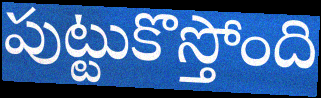
పుట్టుకొస్తోంది